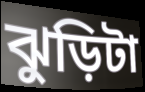
ঝুড়িটা